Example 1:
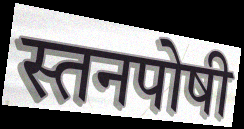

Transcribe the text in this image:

स्तनपोषी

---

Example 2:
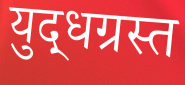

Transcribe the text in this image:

युद्धग्रस्त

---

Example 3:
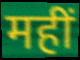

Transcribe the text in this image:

महीं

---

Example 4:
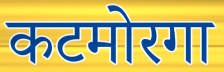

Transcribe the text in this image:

कटमोरगा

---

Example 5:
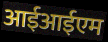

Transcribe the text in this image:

आईआईएम